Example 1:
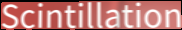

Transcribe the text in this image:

Scintillation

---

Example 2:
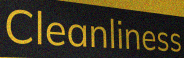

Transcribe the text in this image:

Cleanliness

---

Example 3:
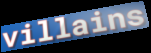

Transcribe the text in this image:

villains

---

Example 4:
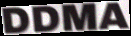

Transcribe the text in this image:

DDMA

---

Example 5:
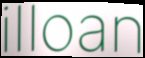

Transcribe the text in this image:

illoan